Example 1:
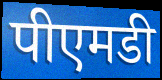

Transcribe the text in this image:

पीएमडी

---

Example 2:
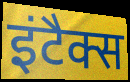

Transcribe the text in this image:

इंटैक्स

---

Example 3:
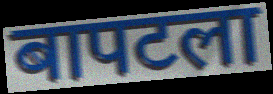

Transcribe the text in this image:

बापटला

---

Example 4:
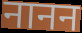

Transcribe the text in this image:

नानन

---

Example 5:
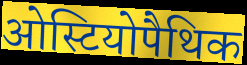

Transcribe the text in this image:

ओस्टियोपैथिक